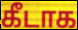
கீடாக